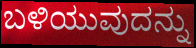
ಬಳಿಯುವುದನ್ನು